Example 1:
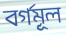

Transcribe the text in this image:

বৰ্গমূল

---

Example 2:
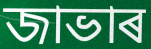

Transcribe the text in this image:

জাভাৰ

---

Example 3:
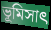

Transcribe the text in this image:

ভূমিসাৎ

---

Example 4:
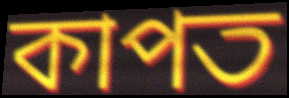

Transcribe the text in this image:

কাপত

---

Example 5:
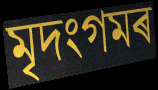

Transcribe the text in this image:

মৃদংগমৰ